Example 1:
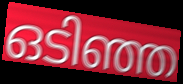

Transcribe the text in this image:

ഒടിഞ്ഞ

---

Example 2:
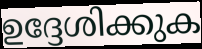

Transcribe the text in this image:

ഉദ്ദേശിക്കുക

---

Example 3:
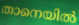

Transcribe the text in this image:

താനെയിൽ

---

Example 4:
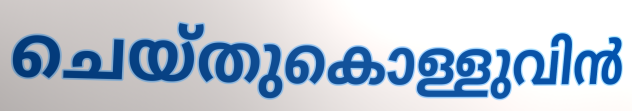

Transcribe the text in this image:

ചെയ്തുകൊള്ളുവിൻ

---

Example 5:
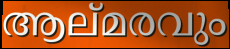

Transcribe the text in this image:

ആല്മരവും